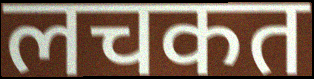
लचकत